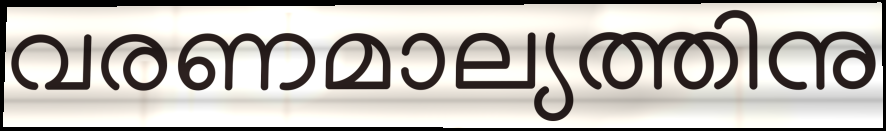
വരണമാല്യത്തിനു